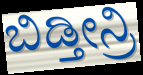
ಬಿಡ್ತೀನ್ರಿ